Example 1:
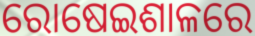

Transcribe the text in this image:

ରୋଷେଇଶାଳରେ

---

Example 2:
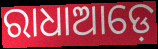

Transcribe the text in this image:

ରାଧାଆଡ଼େ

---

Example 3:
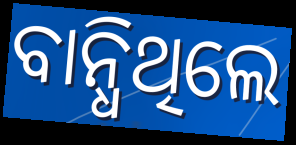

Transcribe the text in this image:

ବାନ୍ଧିଥିଲେ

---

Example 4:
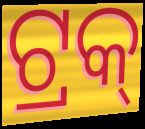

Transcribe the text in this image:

ଟ୍ରକ୍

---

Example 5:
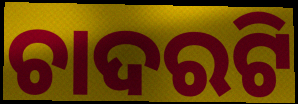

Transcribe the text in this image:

ଚାଦରଟି